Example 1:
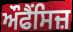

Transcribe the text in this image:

ਔਫੈਂਸਿਜ਼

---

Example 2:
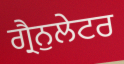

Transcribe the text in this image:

ਗ੍ਰੈਨੁਲੇਟਰ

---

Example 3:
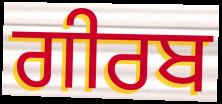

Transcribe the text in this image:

ਗੀਰਬ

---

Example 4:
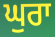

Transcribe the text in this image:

ਘੁਰਾ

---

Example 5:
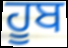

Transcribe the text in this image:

ਹੂਬ